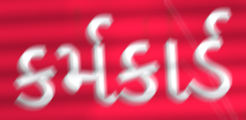
કર્મકાર્ડ